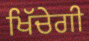
ਖਿੱਚੇਗੀ